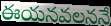
ఈయనవలననే